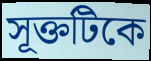
সূক্তটিকে